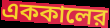
এককালের